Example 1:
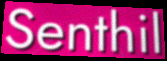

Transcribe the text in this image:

Senthil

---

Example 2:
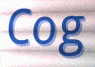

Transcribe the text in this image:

Cog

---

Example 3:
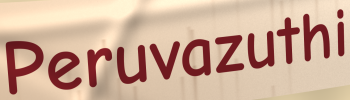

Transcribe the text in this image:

Peruvazuthi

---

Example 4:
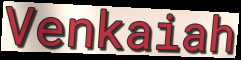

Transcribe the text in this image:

Venkaiah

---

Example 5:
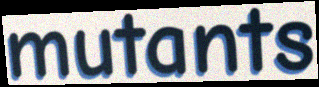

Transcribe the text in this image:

mutants